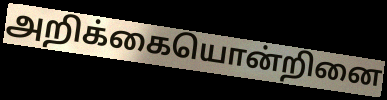
அறிக்கையொன்றினை